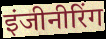
इंजीनीरिंग